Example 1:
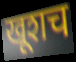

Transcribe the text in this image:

खूशच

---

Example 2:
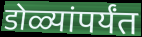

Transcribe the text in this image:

डोळ्यांपर्यंत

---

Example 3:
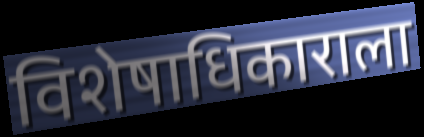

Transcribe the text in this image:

विशेषाधिकाराला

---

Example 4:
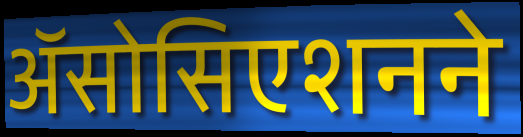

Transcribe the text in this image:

ॲसोसिएशनने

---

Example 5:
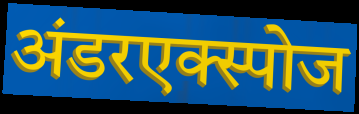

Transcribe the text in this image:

अंडरएक्स्पोज